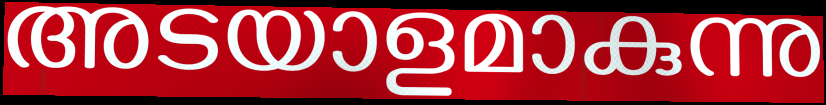
അടയാളമാകുന്നു